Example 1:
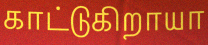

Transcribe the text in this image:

காட்டுகிறாயா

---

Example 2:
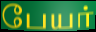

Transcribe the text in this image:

பேயர்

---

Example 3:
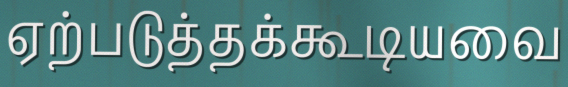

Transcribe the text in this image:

ஏற்படுத்தக்கூடியவை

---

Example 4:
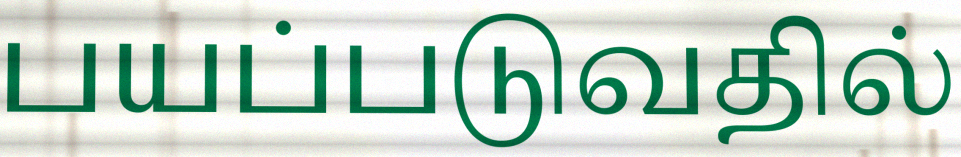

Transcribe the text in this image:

பயப்படுவதில்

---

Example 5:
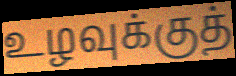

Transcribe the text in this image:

உழவுக்குத்